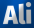
Ali